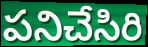
పనిచేసిరి